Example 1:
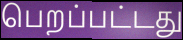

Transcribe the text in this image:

பெறப்பட்டது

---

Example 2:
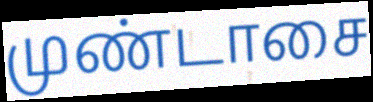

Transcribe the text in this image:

முண்டாசை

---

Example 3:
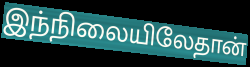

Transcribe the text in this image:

இந்நிலையிலேதான்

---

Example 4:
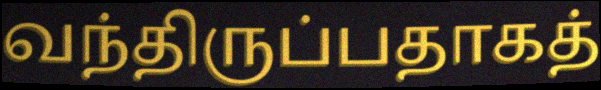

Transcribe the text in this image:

வந்திருப்பதாகத்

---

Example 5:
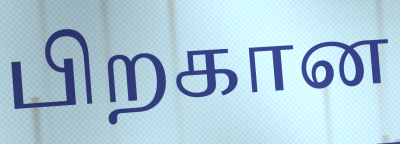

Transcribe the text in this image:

பிறகான